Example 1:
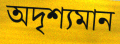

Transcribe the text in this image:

অদৃশ্যমান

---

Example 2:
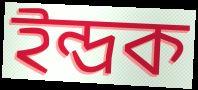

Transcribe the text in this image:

ইন্দ্ৰক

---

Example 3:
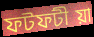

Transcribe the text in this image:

ফটফটীয়া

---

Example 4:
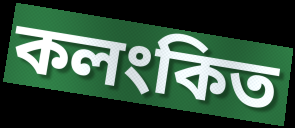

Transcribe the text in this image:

কলংকিত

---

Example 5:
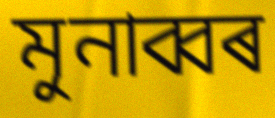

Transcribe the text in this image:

মুনাব্বৰ